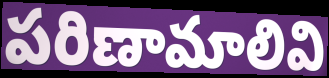
పరిణామాలివి